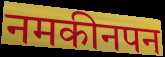
नमकीनपन